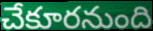
చేకూరనుంది